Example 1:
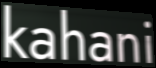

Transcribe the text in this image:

kahani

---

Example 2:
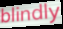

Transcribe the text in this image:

blindly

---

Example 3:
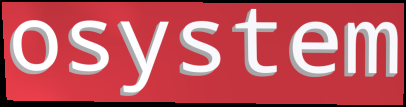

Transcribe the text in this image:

osystem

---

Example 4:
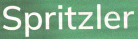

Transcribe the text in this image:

Spritzler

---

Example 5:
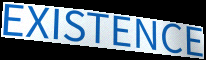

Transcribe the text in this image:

EXISTENCE